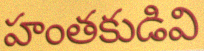
హంతకుడివి